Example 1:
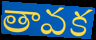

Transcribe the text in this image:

తావక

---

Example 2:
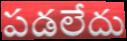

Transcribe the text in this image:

పడలేదు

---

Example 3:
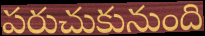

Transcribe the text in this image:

పరుచుకునుంది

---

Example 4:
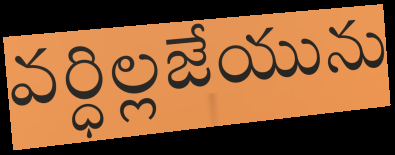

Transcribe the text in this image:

వర్ధిల్లజేయును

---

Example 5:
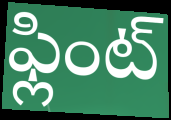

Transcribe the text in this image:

ఫ్లింట్